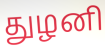
துழனி